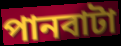
পানবাটা